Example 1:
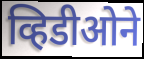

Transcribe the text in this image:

व्हिडीओने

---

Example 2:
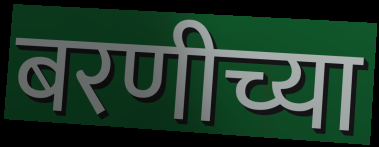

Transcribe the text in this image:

बरणीच्या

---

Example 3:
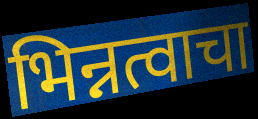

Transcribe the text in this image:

भिन्नत्वाचा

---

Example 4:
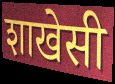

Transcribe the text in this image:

शाखेसी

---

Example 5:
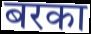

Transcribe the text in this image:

बरका